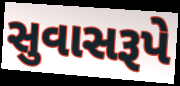
સુવાસરૂપે